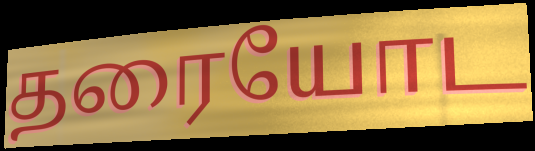
தரையோட